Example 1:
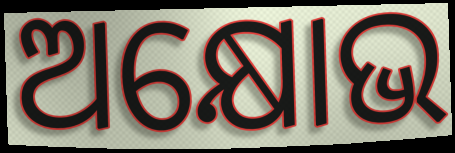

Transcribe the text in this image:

ଅକ୍ଷୋଭ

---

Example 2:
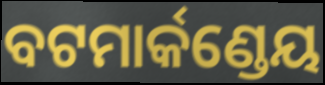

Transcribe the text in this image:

ବଟମାର୍କଣ୍ଡେୟ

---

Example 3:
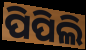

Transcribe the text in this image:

ପିପିଲି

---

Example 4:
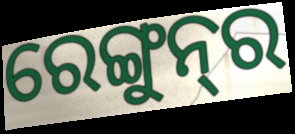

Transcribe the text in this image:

ରେଙ୍ଗୁନ୍‌ର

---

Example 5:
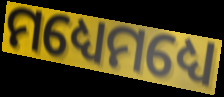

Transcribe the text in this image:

ମଧ୍ୟେମଧ୍ୟେ